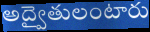
అద్వైతులంటారు